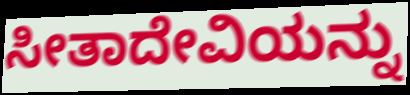
ಸೀತಾದೇವಿಯನ್ನು